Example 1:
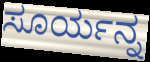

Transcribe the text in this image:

ಸೂರ್ಯನ್ನ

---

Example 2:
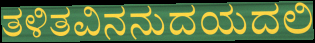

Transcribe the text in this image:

ತಳಿತವಿನನುದಯದಲಿ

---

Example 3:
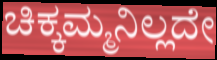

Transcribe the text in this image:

ಚಿಕ್ಕಮ್ಮನಿಲ್ಲದೇ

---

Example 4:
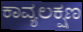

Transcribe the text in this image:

ಕಾವ್ಯಲಕ್ಷಣ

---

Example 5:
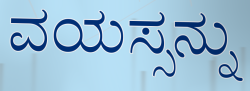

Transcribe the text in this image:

ವಯಸ್ಸನ್ನು